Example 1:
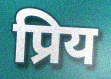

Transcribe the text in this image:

प्रिय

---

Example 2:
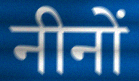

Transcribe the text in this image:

नीनों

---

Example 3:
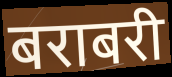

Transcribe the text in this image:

बराबरी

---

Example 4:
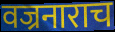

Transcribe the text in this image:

वज्रनाराच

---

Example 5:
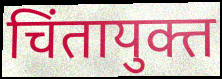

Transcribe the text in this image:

चिंतायुक्त